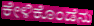
ಕೇಳಿಕೊಂಡೆನು